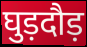
घुड़दौड़